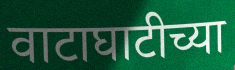
वाटाघाटीच्या